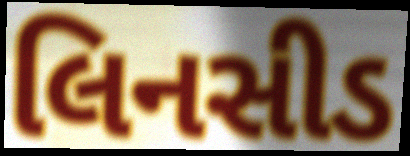
લિનસીડ